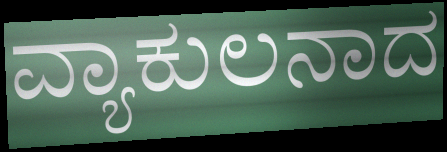
ವ್ಯಾಕುಲನಾದ